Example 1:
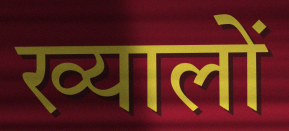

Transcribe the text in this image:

ख्यालों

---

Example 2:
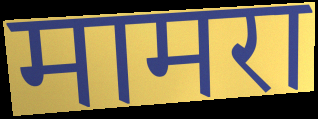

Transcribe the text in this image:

मामरा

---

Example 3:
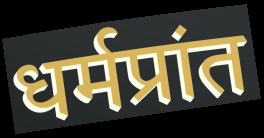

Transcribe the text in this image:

धर्मप्रांत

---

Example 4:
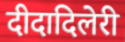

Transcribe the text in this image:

दीदादिलेरी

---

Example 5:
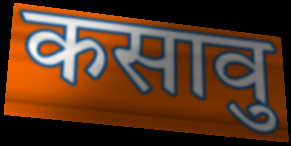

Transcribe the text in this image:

कसावु